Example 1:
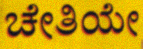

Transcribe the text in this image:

ಚೇತಿಯೇ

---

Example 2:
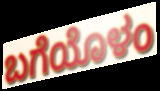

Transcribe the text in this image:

ಬಗೆಯೊಳಂ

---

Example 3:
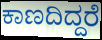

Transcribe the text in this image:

ಕಾಣದಿದ್ದರೆ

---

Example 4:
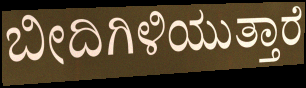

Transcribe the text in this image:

ಬೀದಿಗಿಳಿಯುತ್ತಾರೆ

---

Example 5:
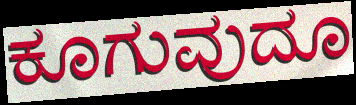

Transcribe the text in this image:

ಕೂಗುವುದೂ